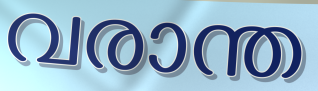
വരാന്ത